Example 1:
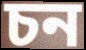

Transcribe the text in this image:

চন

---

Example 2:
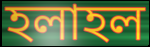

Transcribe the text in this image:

হলাহল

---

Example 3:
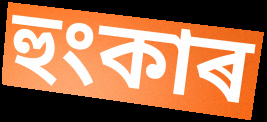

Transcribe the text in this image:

হুংকাৰ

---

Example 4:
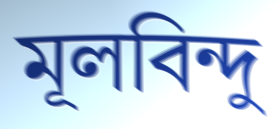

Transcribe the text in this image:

মূলবিন্দু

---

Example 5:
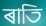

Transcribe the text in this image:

ৰাতি